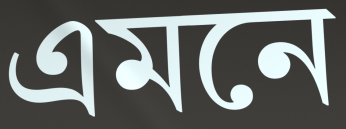
এমনে